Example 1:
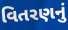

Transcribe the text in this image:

વિતરણનું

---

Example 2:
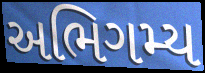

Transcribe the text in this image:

અભિગમ્ય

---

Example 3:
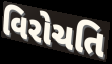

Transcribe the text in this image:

વિરોચતિ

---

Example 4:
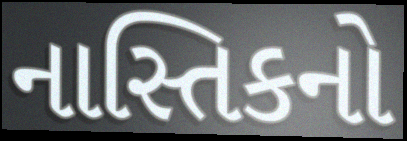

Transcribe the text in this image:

નાસ્તિકનો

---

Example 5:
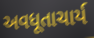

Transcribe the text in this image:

અવધૂતાચાર્ય